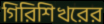
গিরিশিখরের